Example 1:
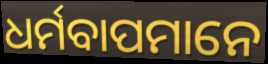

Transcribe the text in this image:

ଧର୍ମବାପମାନେ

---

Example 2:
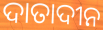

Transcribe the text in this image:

ଦାତାଦୀନ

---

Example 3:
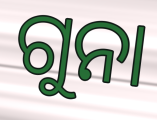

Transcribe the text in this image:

ଗୁନା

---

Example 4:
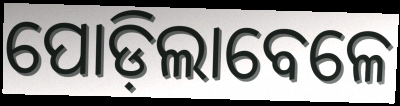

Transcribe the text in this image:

ପୋଡ଼ିଲାବେଳେ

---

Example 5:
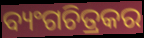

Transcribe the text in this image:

ବ୍ୟଂଗଚିତ୍ରକର